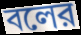
বলের